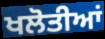
ਖਲੋਤੀਆਂ